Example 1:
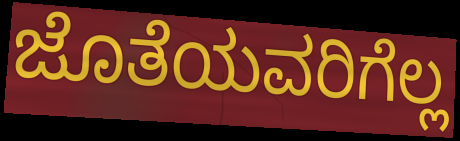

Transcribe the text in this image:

ಜೊತೆಯವರಿಗೆಲ್ಲ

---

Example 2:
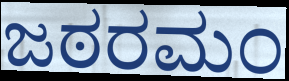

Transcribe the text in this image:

ಜಠರಮಂ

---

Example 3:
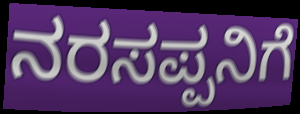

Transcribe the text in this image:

ನರಸಪ್ಪನಿಗೆ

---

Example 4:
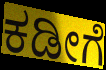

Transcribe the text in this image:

ಕಡೀಗೆ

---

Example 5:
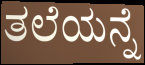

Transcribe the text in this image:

ತಲೆಯನ್ನೆ